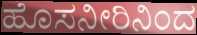
ಹೊಸನೀರಿನಿಂದ